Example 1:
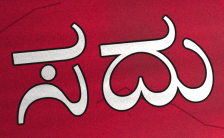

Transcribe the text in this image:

ಸದು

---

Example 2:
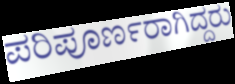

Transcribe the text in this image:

ಪರಿಪೂರ್ಣರಾಗಿದ್ದರು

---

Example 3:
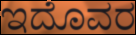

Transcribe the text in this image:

ಇದೊವರ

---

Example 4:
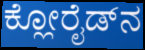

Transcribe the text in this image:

ಕ್ಲೋರೈಡ್‍ನ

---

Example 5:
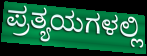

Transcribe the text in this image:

ಪ್ರತ್ಯಯಗಳಲ್ಲಿ